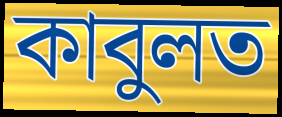
কাবুলত